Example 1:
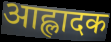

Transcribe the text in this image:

आह्लादक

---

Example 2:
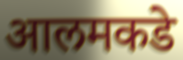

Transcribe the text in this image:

आलमकडे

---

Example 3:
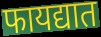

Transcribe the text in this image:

फायद्यात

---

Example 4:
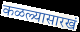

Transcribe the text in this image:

कळल्यासारखं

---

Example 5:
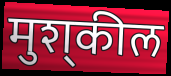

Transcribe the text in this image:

मुश्कील